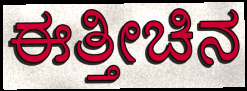
ಈತ್ತೀಚಿನ